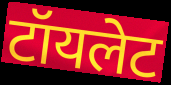
टॉयलेट